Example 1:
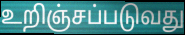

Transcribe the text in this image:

உறிஞ்சப்படுவது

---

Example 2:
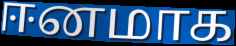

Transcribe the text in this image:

ஈனமாக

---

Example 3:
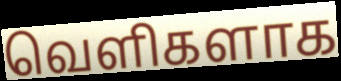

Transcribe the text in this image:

வெளிகளாக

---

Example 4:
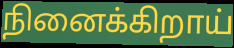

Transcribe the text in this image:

நினைக்கிறாய்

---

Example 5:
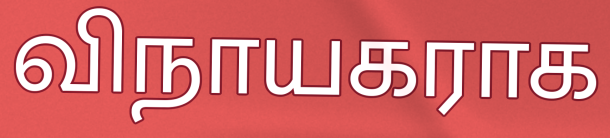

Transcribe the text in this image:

விநாயகராக